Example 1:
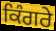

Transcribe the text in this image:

ਕਿੰਗਰੇ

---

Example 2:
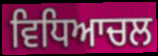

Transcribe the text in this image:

ਵਿਧਿਆਚਲ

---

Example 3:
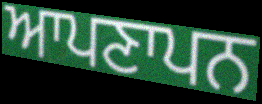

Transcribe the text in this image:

ਆਪਣਾਪਨ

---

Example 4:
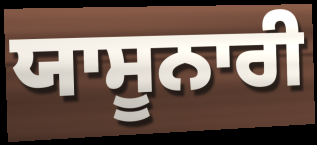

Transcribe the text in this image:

ਯਾਸੂਨਾਰੀ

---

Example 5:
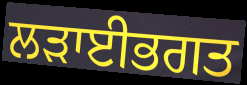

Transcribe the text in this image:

ਲੜਾਈਭਗਤ